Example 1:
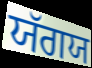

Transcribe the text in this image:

ਯੱਗਯ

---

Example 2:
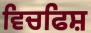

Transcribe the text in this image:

ਵਿਚਫਿਸ਼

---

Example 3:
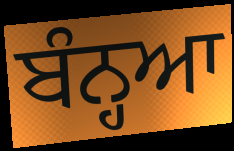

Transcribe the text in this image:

ਬੰਨ੍ਹਆ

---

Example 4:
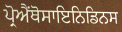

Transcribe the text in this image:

ਪ੍ਰੋਐਂਥੋਸਾਇਨਿਡਿਨਸ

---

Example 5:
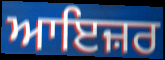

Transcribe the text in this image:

ਆਇਜ਼ਰ